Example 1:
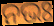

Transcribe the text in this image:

ନଭଃ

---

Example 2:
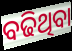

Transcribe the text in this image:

ବଢିଥିବା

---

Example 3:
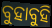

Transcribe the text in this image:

ବୁହାବୁହି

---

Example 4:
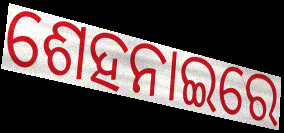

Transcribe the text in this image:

ଶେହନାଇରେ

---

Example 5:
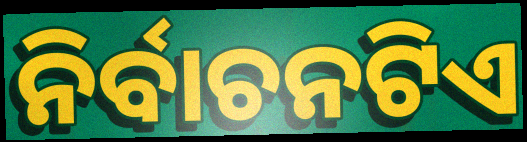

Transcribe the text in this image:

ନିର୍ବାଚନଟିଏ